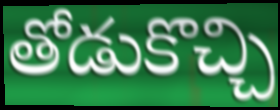
తోడుకొచ్చి